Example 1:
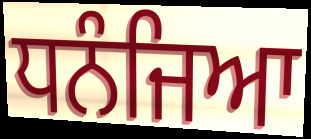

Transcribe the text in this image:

ਧਨੰਜਿਆ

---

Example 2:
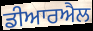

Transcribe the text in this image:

ਡੀਆਰਐਲ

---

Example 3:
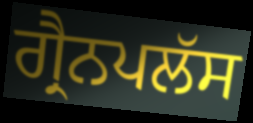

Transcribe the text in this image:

ਗ੍ਰੈਨਪਲੱਸ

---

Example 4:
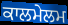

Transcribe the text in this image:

ਕਾਲਮੇਲਮ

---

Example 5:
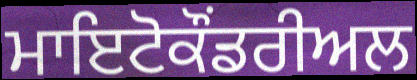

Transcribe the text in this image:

ਮਾਇਟੋਕੌਂਡਰੀਅਲ